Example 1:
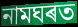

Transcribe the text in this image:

নামঘৰত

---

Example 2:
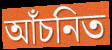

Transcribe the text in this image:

আঁচনিত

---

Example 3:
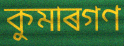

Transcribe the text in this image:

কুমাৰগণ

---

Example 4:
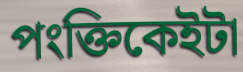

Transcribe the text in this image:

পংক্তিকেইটা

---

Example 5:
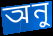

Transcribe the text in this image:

অনু